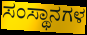
ಸಂಸ್ಥಾನಗಳ